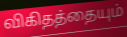
விகிதத்தையும்